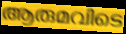
ആരുമവിടെ